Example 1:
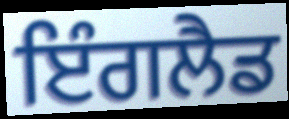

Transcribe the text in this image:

ਇੰਗਲੈਡ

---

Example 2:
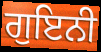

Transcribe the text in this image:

ਗੁਇਨੀ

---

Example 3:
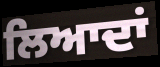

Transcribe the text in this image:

ਲਿਆਦਾਂ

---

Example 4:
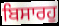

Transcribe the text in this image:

ਬਿਸਾਰਹੁ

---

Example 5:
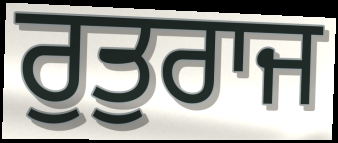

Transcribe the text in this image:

ਰੁਤੁਰਾਜ